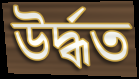
উৰ্দ্ধত